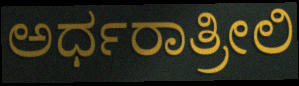
ಅರ್ಧರಾತ್ರೀಲಿ